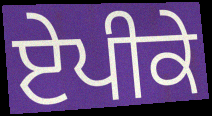
ਏਪੀਕੇ